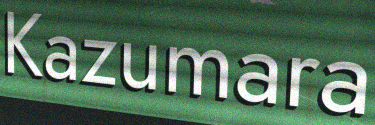
Kazumara